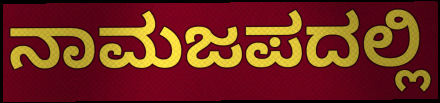
ನಾಮಜಪದಲ್ಲಿ